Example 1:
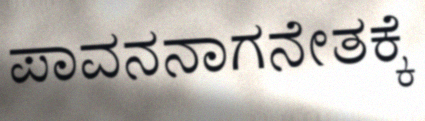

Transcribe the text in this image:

ಪಾವನನಾಗನೇತಕ್ಕೆ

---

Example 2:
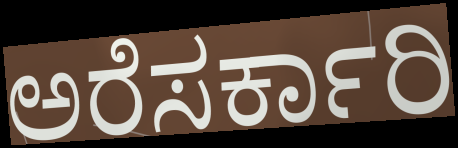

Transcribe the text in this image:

ಅರೆಸರ್ಕಾರಿ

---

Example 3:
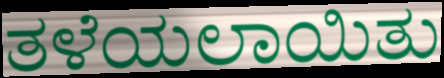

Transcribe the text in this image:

ತಳೆಯಲಾಯಿತು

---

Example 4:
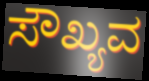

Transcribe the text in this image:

ಸೌಖ್ಯವ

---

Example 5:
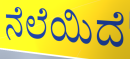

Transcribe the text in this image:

ನೆಲೆಯಿದೆ